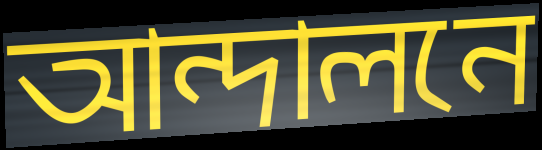
আন্দালনে